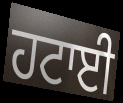
ਹਟਾਈ